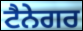
ਟੈਨੇਗਰ